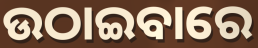
ଉଠାଇବାରେ